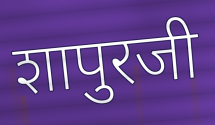
शापुरजी